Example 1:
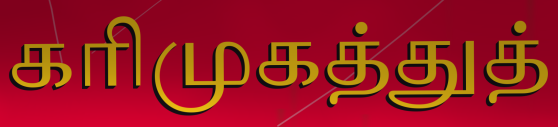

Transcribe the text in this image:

கரிமுகத்துத்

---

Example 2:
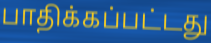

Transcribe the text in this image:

பாதிக்கப்பட்டது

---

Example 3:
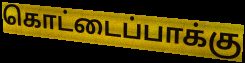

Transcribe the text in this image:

கொட்டைப்பாக்கு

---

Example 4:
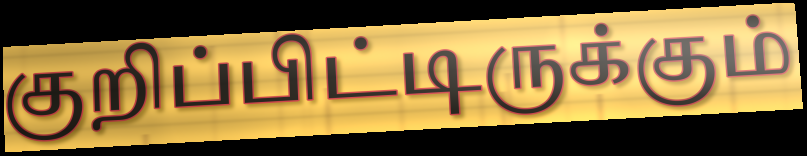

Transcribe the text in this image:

குறிப்பிட்டிருக்கும்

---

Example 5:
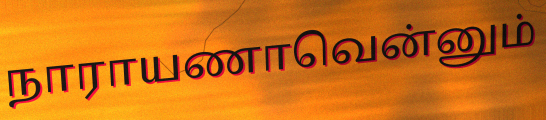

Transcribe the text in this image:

நாராயணாவென்னும்